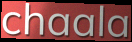
chaala